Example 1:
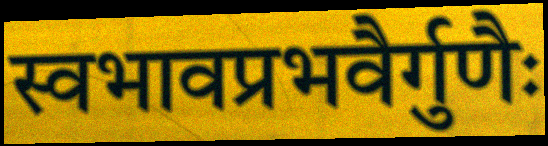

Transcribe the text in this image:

स्वभावप्रभवैर्गुणैः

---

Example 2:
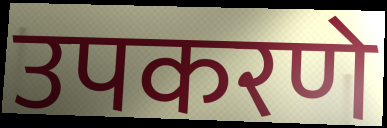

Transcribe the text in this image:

उपकरणे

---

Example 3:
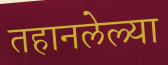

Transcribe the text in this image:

तहानलेल्या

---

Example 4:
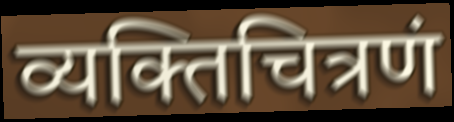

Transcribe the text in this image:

व्यक्तिचित्रणं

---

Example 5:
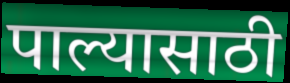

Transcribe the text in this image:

पाल्यासाठी